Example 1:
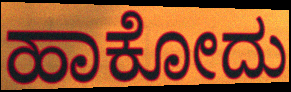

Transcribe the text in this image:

ಹಾಕೋದು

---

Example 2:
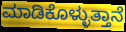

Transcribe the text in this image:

ಮಾಡಿಕೊಳ್ಳುತ್ತಾನೆ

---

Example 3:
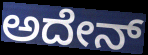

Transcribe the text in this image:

ಅದೇನ್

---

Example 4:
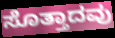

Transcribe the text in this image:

ಸೊತ್ತಾದವು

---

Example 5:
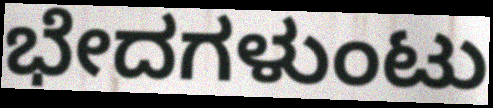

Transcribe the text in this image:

ಭೇದಗಳುಂಟು